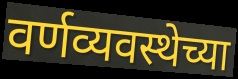
वर्णव्यवस्थेच्या